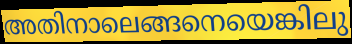
അതിനാലെങ്ങനെയെങ്കിലു